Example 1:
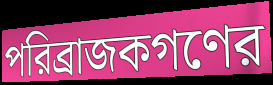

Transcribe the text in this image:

পরিব্রাজকগণের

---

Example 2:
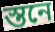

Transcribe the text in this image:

স্তনে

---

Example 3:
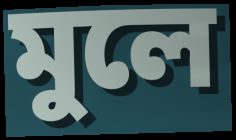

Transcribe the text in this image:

মুলে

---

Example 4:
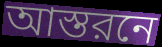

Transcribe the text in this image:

আস্তরনে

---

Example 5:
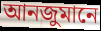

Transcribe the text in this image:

আনজুমানে